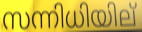
സന്നിധിയില്